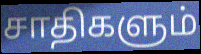
சாதிகளும்